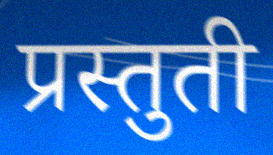
प्रस्तुती